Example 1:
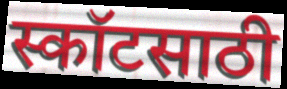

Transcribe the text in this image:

स्कॉटसाठी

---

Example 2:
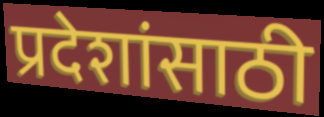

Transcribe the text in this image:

प्रदेशांसाठी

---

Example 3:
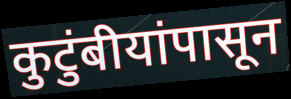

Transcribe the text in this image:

कुटुंबीयांपासून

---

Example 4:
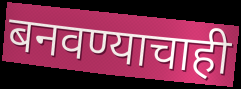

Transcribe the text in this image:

बनवण्याचाही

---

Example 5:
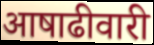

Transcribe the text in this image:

आषाढीवारी